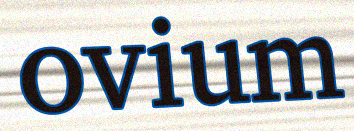
ovium